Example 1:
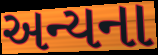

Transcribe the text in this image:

અન્યના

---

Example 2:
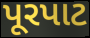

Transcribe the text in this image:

પૂરપાટ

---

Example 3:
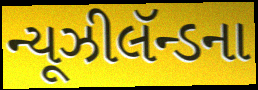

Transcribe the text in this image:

ન્યૂઝીલૅન્ડના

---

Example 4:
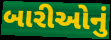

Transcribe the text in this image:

બારીઓનું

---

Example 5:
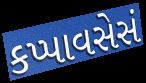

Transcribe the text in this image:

કપ્પાવસેસં